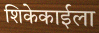
शिकेकाईला